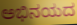
ಅಭಿನಯದ